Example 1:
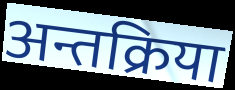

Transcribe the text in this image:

अन्तक्रिया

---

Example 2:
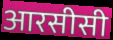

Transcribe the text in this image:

आरसीसी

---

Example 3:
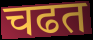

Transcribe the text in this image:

चढत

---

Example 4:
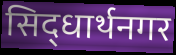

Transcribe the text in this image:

सिद्धार्थनगर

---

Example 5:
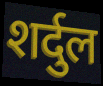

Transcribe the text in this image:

शर्दुल